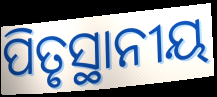
ପିତୃସ୍ଥାନୀୟ